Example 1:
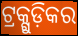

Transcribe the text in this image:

ଟ୍ରକ୍ଗୁଡ଼ିକର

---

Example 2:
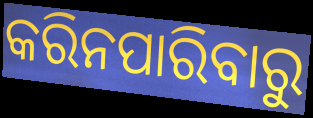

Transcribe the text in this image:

କରିନପାରିବାରୁ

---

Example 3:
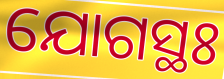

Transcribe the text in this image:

ଯୋଗସ୍ଥଃ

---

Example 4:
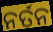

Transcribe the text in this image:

ନର୍ତନ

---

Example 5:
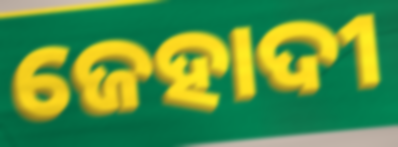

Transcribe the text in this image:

ଜେହାଦୀ